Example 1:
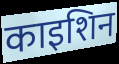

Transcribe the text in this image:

काइशिन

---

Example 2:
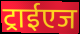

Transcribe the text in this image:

ट्राईएज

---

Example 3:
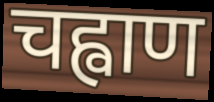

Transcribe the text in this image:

चह्वाण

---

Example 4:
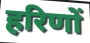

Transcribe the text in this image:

हरिणों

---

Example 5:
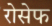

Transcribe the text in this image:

रोसेफ